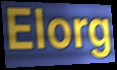
Elorg